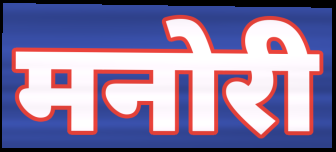
मनोरी